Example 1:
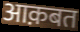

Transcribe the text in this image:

आक़बत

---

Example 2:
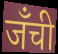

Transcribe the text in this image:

जँची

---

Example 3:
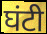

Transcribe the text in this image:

घंटी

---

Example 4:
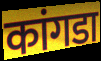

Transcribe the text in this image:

कांगडा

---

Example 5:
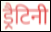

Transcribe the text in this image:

ड्रैटिनी